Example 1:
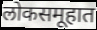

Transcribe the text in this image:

लोकसमूहात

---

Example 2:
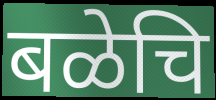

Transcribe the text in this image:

बळेचि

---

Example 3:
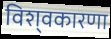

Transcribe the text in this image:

विश्वकारणा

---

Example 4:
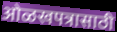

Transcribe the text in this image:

ओळखपत्रासाठी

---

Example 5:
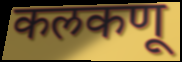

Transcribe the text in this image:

कलकणू